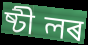
ষ্টীলৰ